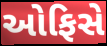
ઓફિસે